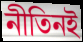
নীতিনই